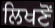
ਲਿਖਣੋਂ